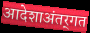
आदेशाअंतर्गत